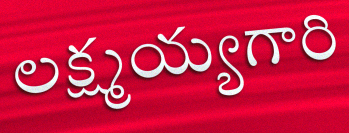
లక్ష్మయ్యగారి